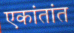
एकांतांत